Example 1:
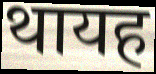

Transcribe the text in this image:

थायह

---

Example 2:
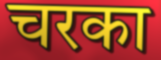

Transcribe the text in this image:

चरका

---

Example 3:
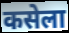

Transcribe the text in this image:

कसेला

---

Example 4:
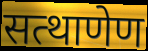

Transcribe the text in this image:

सत्थाणेण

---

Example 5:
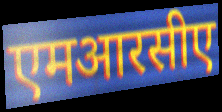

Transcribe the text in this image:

एमआरसीए